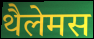
थैलेमस